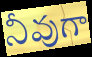
నీవుగా